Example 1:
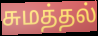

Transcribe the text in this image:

சுமத்தல்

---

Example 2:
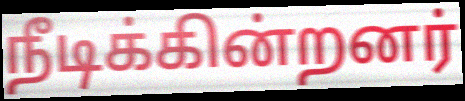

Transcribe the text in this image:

நீடிக்கின்றனர்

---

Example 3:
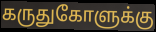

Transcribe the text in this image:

கருதுகோளுக்கு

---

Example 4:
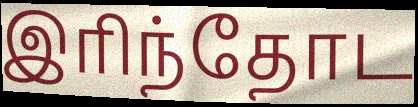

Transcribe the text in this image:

இரிந்தோட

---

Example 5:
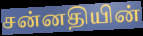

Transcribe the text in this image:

சன்னதியின்